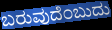
ಬರುವುದೆಂಬುದು